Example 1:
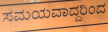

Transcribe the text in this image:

ಸಮಯವಾದ್ದರಿಂದ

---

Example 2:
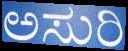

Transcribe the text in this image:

ಅಸುರಿ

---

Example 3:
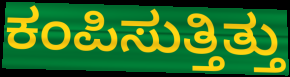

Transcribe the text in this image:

ಕಂಪಿಸುತ್ತಿತ್ತು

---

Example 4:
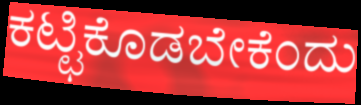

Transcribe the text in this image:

ಕಟ್ಟಿಕೊಡಬೇಕೆಂದು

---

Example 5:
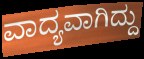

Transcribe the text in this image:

ವಾದ್ಯವಾಗಿದ್ದು